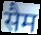
सैम